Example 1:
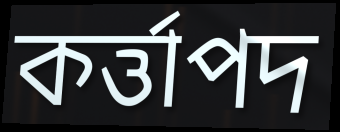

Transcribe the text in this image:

কৰ্ত্তাপদ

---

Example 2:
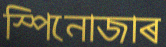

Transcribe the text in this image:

স্পিনোজাৰ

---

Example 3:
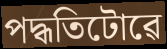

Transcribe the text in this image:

পদ্ধতিটোৱে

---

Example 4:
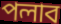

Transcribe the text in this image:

পলাব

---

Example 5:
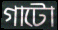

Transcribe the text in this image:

গাটো